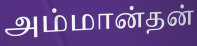
அம்மான்தன்